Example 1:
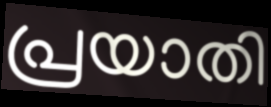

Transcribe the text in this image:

പ്രയാതി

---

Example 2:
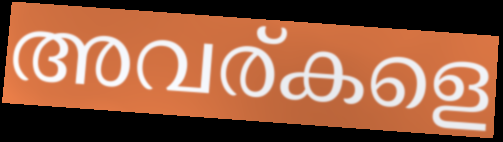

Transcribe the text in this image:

അവര്കളെ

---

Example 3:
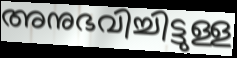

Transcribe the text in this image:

അനുഭവിച്ചിട്ടുള്ള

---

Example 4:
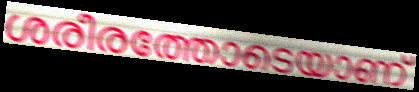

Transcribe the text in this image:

ശരീരത്തോടെയാണ്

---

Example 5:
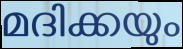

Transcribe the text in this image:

മദിക്കയും